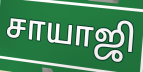
சாயாஜி